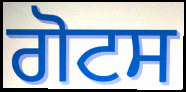
ਗੋਟਸ